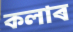
কলাৰ